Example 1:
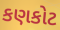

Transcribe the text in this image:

કણકોટ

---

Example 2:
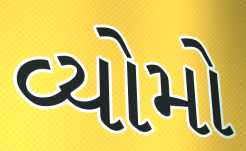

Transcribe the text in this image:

વ્યોમો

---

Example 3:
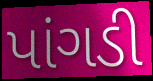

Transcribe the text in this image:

પાંગડી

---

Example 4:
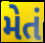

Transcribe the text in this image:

મેતં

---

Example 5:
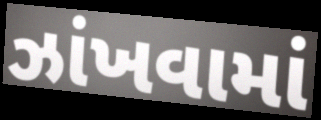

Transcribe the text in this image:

ઝાંખવામાં